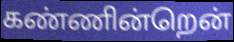
கண்ணின்றென்